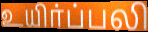
உயிர்ப்பலி